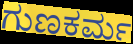
ಗುಣಕರ್ಮ